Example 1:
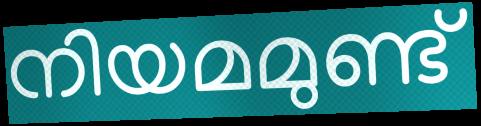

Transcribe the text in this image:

നിയമമുണ്ട്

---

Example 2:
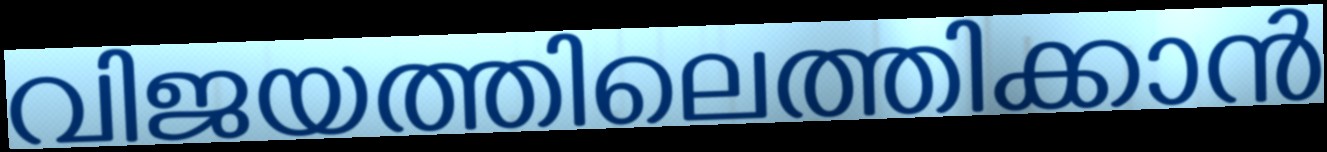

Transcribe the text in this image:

വിജയത്തിലെത്തിക്കാൻ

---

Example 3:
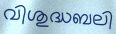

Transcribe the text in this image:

വിശുദ്ധബലി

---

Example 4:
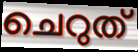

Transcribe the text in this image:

ചെറുത്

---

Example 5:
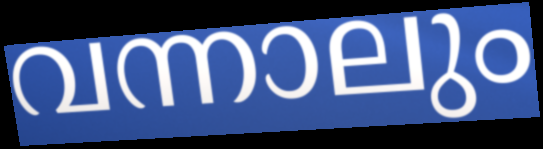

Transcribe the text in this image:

വന്നാലും